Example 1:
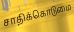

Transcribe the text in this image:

சாதிக்கொடுமை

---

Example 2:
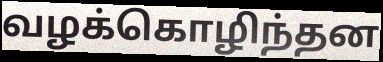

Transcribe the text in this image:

வழக்கொழிந்தன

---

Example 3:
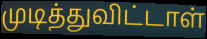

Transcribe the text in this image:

முடித்துவிட்டாள்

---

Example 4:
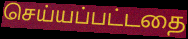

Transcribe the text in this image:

செய்யப்பட்டதை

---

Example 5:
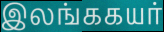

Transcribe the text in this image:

இலங்ககயர்